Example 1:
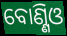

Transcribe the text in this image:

ବୋଣ୍ଣିଓ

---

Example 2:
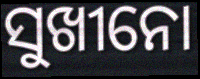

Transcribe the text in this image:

ସୁଖୀନୋ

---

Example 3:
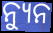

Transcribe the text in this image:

ନ୍ୟୁନ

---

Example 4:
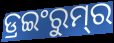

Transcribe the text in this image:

ଡ୍ରଇଂରୁମ୍‌ର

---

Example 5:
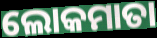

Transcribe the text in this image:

ଲୋକମାତା